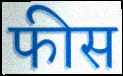
फीस